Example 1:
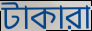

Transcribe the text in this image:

টাকারা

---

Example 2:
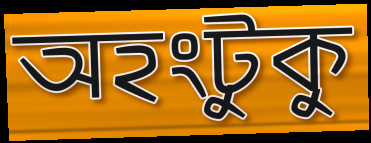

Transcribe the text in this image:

অহংটুকু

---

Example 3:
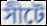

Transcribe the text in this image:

সীটে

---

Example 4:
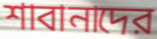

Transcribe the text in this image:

শাবানাদের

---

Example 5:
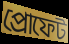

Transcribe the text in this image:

প্রোফেট